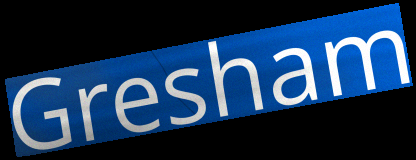
Gresham